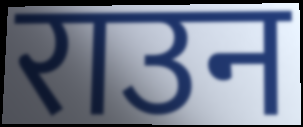
राउन